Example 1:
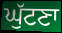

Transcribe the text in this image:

ਘੁੱਟਣਾ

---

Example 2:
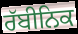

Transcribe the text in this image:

ਰੱਬੀਨਿਕ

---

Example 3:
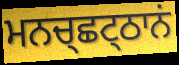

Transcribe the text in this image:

ਮਨਚ੍ਛਟ੍ਠਾਨਂ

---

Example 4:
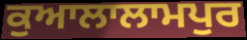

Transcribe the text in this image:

ਕੁਆਲਾਲਾਮਪੁਰ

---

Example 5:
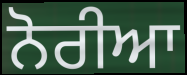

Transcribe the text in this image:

ਨੋਰੀਆ